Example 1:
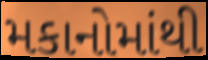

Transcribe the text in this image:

મકાનોમાંથી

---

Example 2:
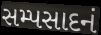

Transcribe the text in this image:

સમ્પસાદનં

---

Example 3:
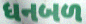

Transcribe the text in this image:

ધનબળ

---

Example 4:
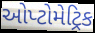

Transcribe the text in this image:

ઓપ્ટોમેટ્રિક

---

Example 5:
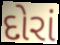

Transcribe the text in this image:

દોરાં